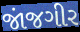
જાંજગીર